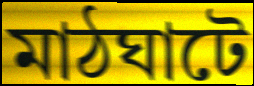
মাঠঘাটে